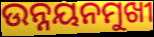
ଉନ୍ନୟନମୁଖୀ